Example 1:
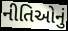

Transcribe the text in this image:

નીતિઓનું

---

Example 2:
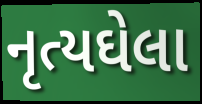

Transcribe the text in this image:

નૃત્યઘેલા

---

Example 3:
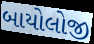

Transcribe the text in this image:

બાયોલોજી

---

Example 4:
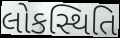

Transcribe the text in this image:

લોકસ્થિતિ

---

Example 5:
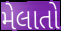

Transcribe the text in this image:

મેલાતો